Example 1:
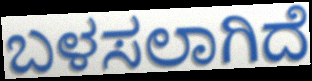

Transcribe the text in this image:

ಬಳಸಲಾಗಿದೆ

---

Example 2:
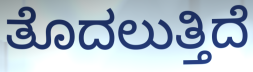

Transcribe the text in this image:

ತೊದಲುತ್ತಿದೆ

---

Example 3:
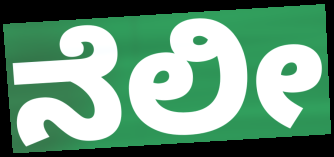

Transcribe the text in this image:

ನೆಲೀ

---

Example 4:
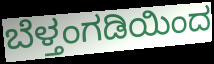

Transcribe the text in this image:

ಬೆಳ್ತಂಗಡಿಯಿಂದ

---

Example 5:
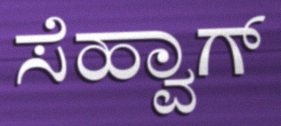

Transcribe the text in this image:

ಸೆಹ್ವಾಗ್